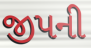
જીપની